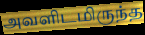
அவளிடமிருந்த